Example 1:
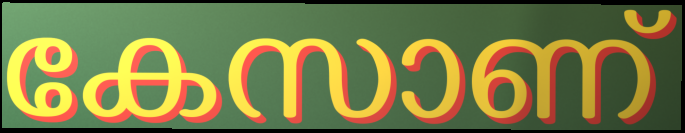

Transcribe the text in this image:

കേസാണ്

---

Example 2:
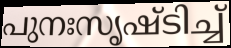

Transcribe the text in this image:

പുനഃസൃഷ്ടിച്ച്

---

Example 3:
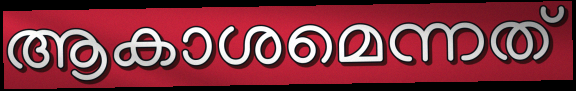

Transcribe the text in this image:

ആകാശമെന്നത്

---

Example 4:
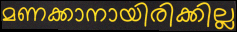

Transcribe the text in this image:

മണക്കാനായിരിക്കില്ല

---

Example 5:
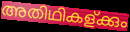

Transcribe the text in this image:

അതിഥികള്ക്കും